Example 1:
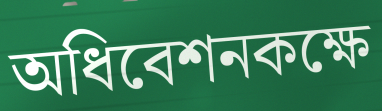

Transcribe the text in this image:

অধিবেশনকক্ষে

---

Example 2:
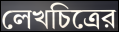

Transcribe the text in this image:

লেখচিত্রের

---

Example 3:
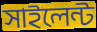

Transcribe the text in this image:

সাইলেন্ট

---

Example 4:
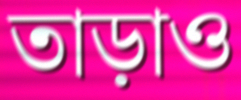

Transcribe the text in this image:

তাড়াও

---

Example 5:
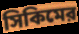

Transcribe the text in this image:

সিকিমের